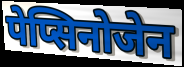
पेप्सिनोजेन